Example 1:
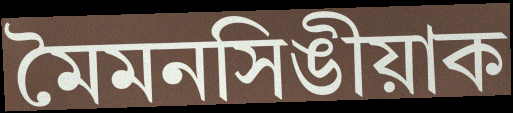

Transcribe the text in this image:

মৈমনসিঙীয়াক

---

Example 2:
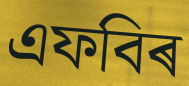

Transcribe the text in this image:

এফবিৰ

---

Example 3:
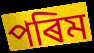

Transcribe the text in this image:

পৰিম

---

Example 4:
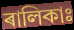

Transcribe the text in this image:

ৰালিকাঃ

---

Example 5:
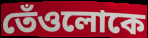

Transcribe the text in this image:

তেঁওলোকে